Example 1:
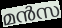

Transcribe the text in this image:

മൻസ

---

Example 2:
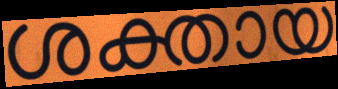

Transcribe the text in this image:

ശക്തായ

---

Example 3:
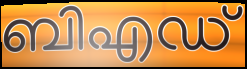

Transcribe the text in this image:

ബിഎഡ്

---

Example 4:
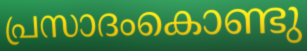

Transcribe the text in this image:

പ്രസാദംകൊണ്ടു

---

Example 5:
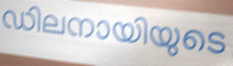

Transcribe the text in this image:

ഡിലനായിയുടെ